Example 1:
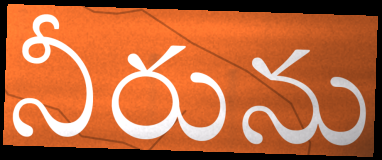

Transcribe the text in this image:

నీరును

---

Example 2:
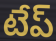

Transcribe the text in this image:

టేప్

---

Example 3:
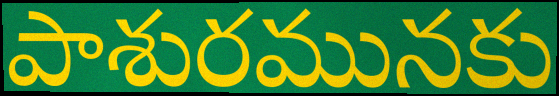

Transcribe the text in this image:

పాశురమునకు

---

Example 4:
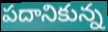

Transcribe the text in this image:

పదానికున్న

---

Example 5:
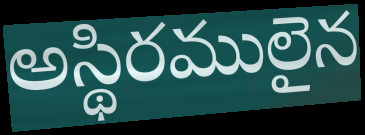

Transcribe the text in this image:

అస్థిరములైన